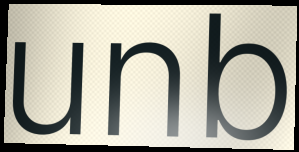
unb